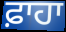
ਫ਼ਾਹਾ